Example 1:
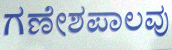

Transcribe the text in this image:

ಗಣೇಶಪಾಲವು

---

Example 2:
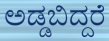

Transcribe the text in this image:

ಅಡ್ಡಬಿದ್ದರೆ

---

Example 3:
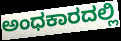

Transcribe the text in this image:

ಅಂಧಕಾರದಲ್ಲಿ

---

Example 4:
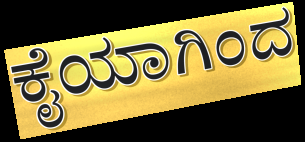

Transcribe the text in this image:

ಕೈಯಾಗಿಂದ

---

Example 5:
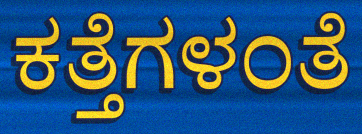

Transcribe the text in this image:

ಕತ್ತೆಗಳಂತೆ